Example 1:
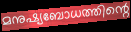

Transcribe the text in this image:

മനുഷ്യബോധത്തിന്റെ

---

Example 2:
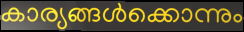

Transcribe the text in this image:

കാര്യങ്ങൾക്കൊന്നും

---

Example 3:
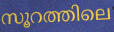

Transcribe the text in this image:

സൂറത്തിലെ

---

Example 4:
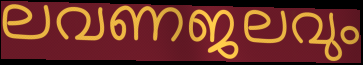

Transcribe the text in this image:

ലവണജലവും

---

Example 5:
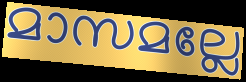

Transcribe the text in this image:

മാസമല്ലേ